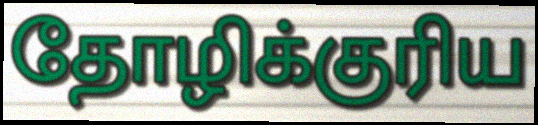
தோழிக்குரிய